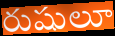
రుషులూ